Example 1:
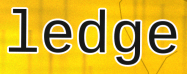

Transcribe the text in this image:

ledge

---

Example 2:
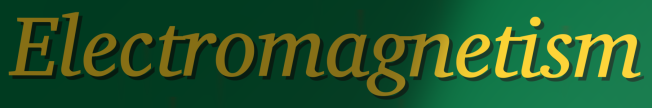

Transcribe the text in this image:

Electromagnetism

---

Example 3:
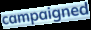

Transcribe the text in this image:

campaigned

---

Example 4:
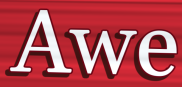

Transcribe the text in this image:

Awe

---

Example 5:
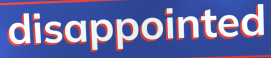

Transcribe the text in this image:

disappointed